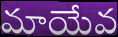
మాయేవ